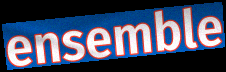
ensemble